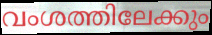
വംശത്തിലേക്കും